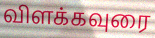
விளக்கவுரை